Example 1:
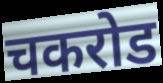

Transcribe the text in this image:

चकरोड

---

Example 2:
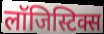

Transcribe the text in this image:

लॉजिस्टिक्स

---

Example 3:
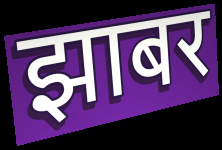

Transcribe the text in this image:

झाबर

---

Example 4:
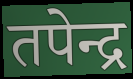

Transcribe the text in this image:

तपेन्द्र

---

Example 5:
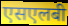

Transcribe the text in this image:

एसएलबी